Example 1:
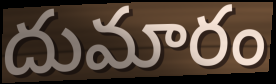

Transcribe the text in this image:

దుమారం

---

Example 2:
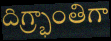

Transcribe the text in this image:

దిగ్ర్భాంతిగా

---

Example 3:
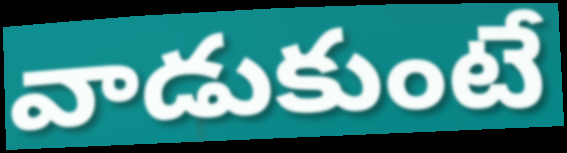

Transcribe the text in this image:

వాడుకుంటే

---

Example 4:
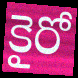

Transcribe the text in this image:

కైరో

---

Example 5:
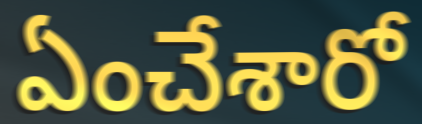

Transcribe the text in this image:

ఏంచేశారో